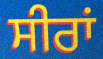
ਸੀਰਾਂ